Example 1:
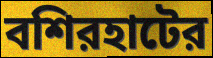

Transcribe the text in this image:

বশিরহাটের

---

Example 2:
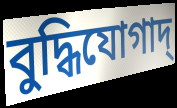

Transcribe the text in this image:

বুদ্ধিযোগাদ্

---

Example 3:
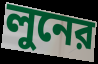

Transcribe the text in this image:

লুনের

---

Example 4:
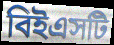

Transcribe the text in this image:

বিইএসটি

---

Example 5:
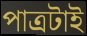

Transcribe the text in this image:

পাত্রটাই